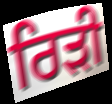
ਰਿੜੀ